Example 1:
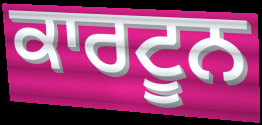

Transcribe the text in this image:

ਕਾਰਟੂਨ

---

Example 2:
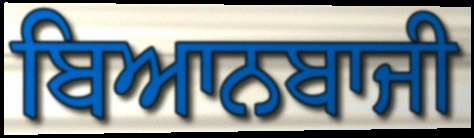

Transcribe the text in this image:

ਬਿਆਨਬਾਜੀ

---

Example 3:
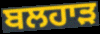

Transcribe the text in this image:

ਬਲਹਾੜ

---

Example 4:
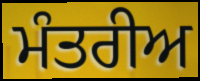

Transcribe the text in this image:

ਮੰਤਰੀਅ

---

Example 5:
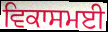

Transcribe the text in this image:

ਵਿਕਾਸਮਈ